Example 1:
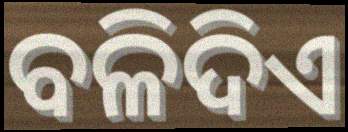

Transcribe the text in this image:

ବଳିଦିଏ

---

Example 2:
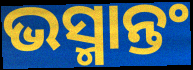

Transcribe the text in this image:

ଭସ୍ମାନ୍ତଂ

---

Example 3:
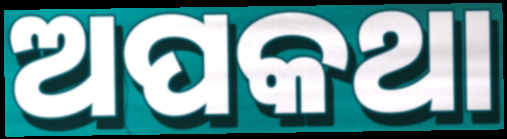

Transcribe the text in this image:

ଅପକଥା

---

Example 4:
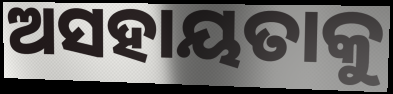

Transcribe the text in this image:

ଅସହାୟତାକୁ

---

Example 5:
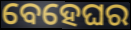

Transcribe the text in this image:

ବେହେଘର